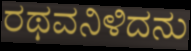
ರಥವನಿಳಿದನು